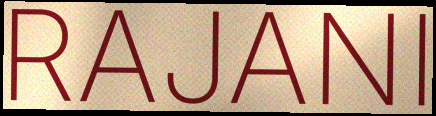
RAJANI